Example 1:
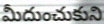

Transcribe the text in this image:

మీదుంచుకుని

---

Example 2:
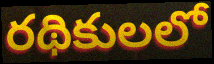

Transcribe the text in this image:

రథికులలో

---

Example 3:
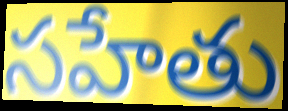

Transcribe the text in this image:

సహేతు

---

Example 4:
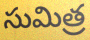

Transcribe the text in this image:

సుమిత్ర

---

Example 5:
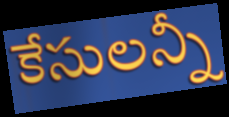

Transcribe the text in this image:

కేసులన్నీ